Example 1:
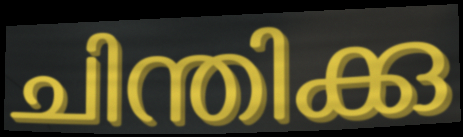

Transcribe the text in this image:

ചിന്തിക്കു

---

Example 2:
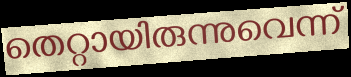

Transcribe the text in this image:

തെറ്റായിരുന്നുവെന്ന്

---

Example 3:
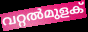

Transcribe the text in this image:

വറ്റൽമുളക്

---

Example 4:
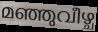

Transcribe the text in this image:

മഞ്ഞുവീഴ്ച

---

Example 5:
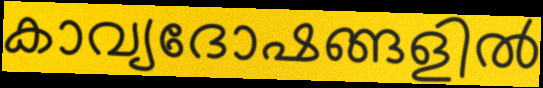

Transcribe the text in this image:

കാവ്യദോഷങ്ങളിൽ